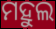
ମହୁଲ